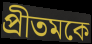
প্রীতমকে